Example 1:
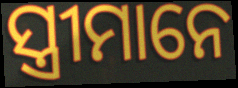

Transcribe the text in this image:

ସ୍ତ୍ରୀମାନେ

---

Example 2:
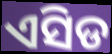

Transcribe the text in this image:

ଏସିଡ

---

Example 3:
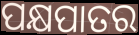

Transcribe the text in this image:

ପକ୍ଷପାତର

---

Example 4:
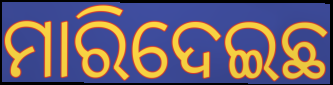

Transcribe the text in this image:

ମାରିଦେଇଛ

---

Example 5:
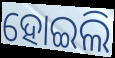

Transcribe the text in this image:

ହୋଇଲି